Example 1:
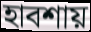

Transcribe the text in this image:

হাবশায়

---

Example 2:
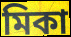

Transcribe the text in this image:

মিকা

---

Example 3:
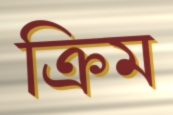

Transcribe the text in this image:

ক্রিম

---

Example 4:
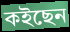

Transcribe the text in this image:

কইছেন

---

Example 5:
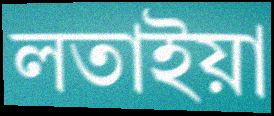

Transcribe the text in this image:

লতাইয়া